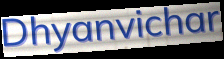
Dhyanvichar